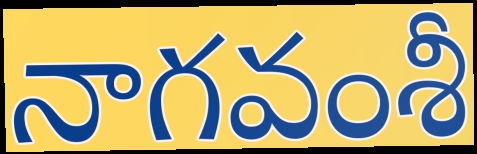
నాగవంశీ